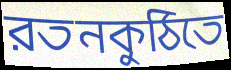
রতনকুঠিতে